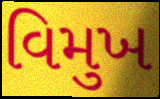
વિમુખ